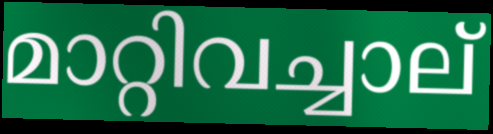
മാറ്റിവച്ചാല്